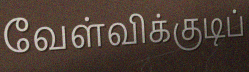
வேள்விக்குடிப்